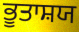
ਭੂਤਾਸ਼ਯ